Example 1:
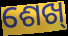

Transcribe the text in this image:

ଶେଖ୍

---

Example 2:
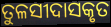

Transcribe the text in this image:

ତୁଳସୀଦାସକୃତ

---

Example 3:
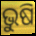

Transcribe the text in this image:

ଭୁଷି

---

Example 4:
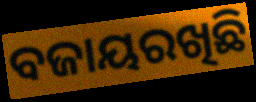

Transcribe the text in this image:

ବଜାୟରଖିଛି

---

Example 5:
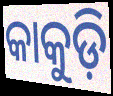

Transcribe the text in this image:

କାକୁଡ଼ି